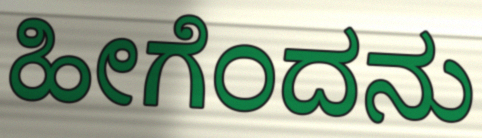
ಹೀಗೆಂದನು